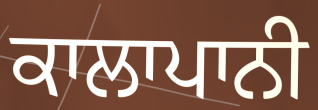
ਕਾਲਾਪਾਨੀ